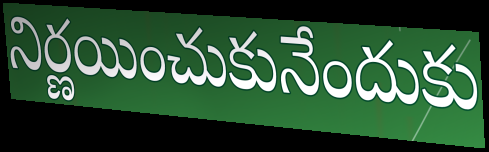
నిర్ణయించుకునేందుకు